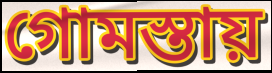
গোমস্তায়